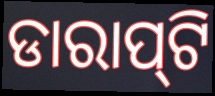
ଡାରାପ୍‌ଟି